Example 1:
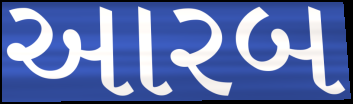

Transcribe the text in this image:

આરબ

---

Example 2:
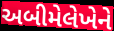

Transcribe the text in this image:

અબીમેલેખેને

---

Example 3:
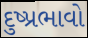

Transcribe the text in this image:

દુષ્પ્રભાવો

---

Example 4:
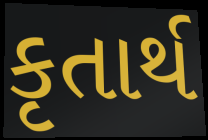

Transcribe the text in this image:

કૃતાર્થ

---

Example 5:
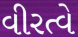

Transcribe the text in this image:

વીરત્વે